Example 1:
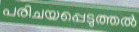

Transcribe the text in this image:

പരിചയപ്പെടുത്തൽ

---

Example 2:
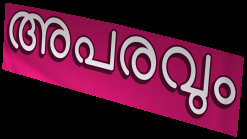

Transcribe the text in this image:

അപരവും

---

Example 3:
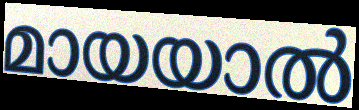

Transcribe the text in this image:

മായയാൽ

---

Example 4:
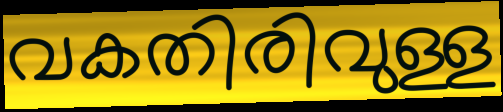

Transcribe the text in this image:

വകതിരിവുള്ള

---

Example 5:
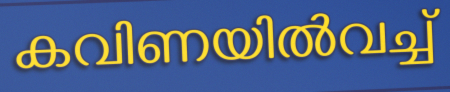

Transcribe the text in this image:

കവിണയിൽവച്ച്